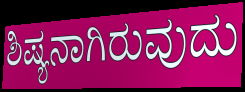
ಶಿಷ್ಯನಾಗಿರುವುದು